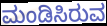
ಮಂಡಿಸಿರುವ